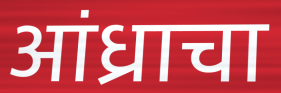
आंध्राचा